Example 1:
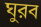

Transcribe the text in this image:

ঘুরব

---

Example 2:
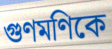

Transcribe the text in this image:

গুণমণিকে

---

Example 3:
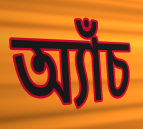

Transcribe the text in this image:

অ্যাঁচ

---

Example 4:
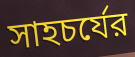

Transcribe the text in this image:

সাহচর্যের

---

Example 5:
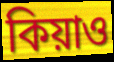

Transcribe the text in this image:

কিয়াও